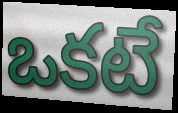
ఒకటే